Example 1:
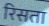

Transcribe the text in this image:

रिसता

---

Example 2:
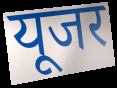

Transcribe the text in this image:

यूजर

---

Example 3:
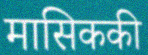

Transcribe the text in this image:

मासिककी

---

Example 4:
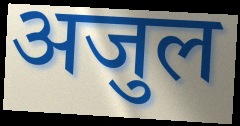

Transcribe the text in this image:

अजुल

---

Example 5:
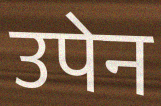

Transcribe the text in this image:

उपेन